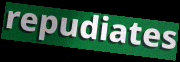
repudiates